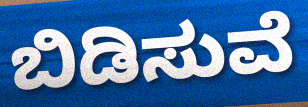
ಬಿಡಿಸುವೆ